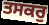
ਤਸਕਰੁ